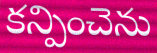
కన్పించెను